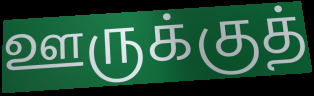
ஊருக்குத்